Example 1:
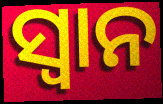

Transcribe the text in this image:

ସ୍ୱାନ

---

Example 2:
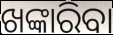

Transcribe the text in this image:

ଖଙ୍କାରିବା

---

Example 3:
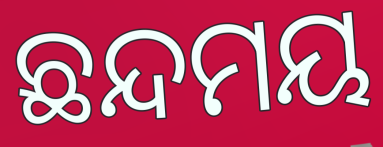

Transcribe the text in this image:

ଛନ୍ଦମୟ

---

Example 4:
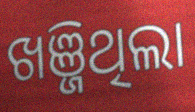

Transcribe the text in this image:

ଖଞ୍ଜିଥିଲା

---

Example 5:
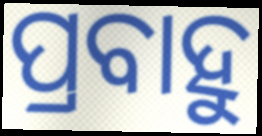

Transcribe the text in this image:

ପ୍ରବାହୁ